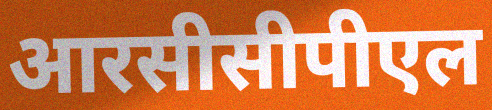
आरसीसीपीएल